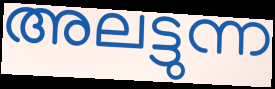
അലട്ടുന്ന